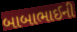
બાબાભાઈની